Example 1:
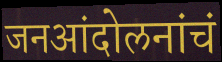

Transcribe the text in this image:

जनआंदोलनांचं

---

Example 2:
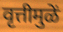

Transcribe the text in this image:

वृत्तीमुळें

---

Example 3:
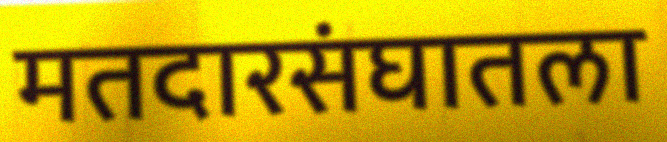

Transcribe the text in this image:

मतदारसंघातला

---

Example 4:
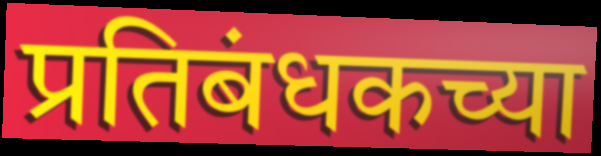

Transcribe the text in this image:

प्रतिबंधकच्या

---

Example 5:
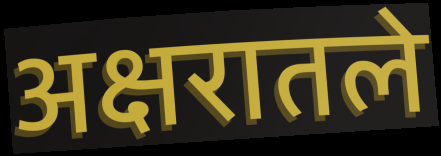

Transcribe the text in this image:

अक्षरातले